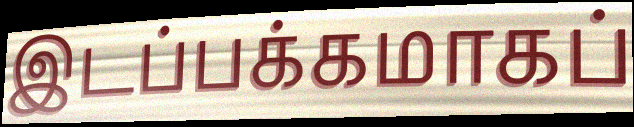
இடப்பக்கமாகப்